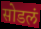
सोडलं